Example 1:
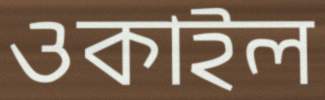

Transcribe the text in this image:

ওকাইল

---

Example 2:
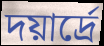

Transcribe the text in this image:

দয়ার্দ্রে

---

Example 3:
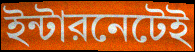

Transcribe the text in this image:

ইন্টারনেটেই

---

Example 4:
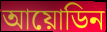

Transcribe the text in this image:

আয়োডিন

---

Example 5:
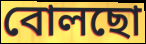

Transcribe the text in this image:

বোলছো